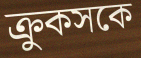
ক্রুকসকে